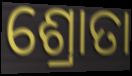
ଶ୍ରୋତା